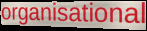
organisational